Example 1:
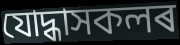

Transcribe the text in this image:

যোদ্ধাসকলৰ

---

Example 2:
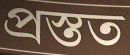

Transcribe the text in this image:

প্ৰস্তত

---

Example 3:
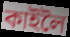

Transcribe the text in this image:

কাইলৈ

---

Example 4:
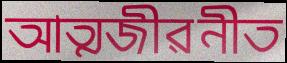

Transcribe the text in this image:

আত্মজীৱনীত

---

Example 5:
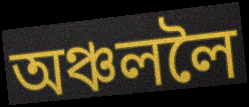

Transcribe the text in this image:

অঞ্চললৈ